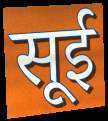
सूई